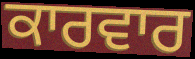
ਕਾਰਵਾਰ